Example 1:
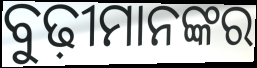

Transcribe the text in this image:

ବୁଢ଼ୀମାନଙ୍କର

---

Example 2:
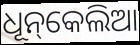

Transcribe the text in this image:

ଧୂନ୍‌କେଲିଆ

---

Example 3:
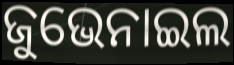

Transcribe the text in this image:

ଜୁଭେନାଇଲ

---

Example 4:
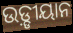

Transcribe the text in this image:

ଉଡ଼୍ଡୀୟାନ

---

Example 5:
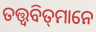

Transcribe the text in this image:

ତତ୍ତ୍ୱବିତ୍‌ମାନେ